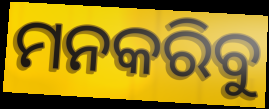
ମନକରିବୁ